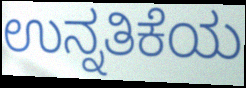
ಉನ್ನತಿಕೆಯ